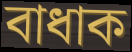
বাধাক